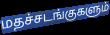
மதச்சடங்குகளும்